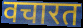
वचारत